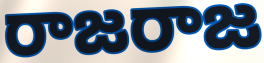
రాజరాజ